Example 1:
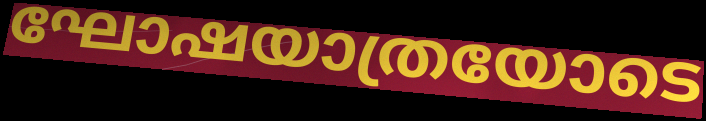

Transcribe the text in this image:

ഘോഷയാത്രയോടെ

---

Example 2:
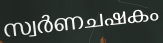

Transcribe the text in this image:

സ്വർണചഷകം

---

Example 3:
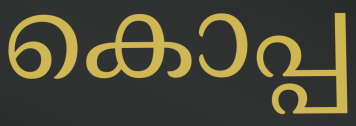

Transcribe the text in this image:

കൊപ്പ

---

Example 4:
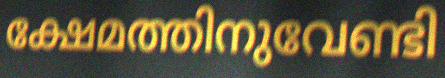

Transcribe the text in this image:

ക്ഷേമത്തിനുവേണ്ടി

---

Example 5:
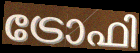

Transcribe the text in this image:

ട്രോഫി